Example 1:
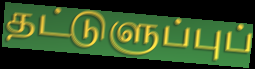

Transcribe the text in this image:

தட்டுளுப்புப்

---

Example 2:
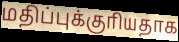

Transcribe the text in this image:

மதிப்புக்குரியதாக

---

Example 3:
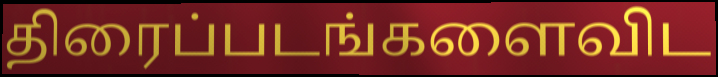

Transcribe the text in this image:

திரைப்படங்களைவிட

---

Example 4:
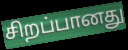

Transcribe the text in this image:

சிறப்பானது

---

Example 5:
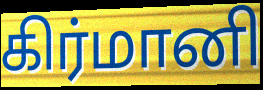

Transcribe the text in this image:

கிர்மானி